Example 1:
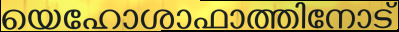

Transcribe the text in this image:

യെഹോശാഫാത്തിനോട്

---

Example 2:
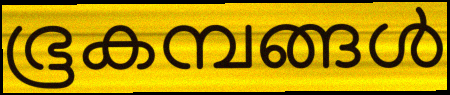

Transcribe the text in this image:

ഭൂകമ്പങ്ങൾ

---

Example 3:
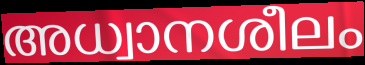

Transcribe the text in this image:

അധ്വാനശീലം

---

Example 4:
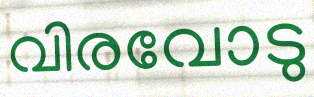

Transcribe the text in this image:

വിരവോടു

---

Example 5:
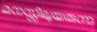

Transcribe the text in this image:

മനസ്സിലുയരുന്ന